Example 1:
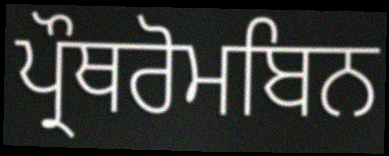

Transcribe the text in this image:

ਪ੍ਰੌਥਰੋਮਬਿਨ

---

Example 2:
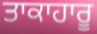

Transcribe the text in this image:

ਤਾਕਾਹਾਰੂ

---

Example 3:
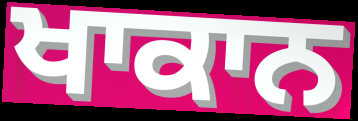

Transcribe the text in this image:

ਖਾਕਾਨ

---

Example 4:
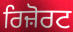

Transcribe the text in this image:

ਰਿਜ਼ੋਰਟ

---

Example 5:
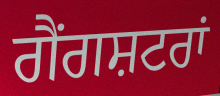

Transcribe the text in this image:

ਗੈਂਗਸ਼ਟਰਾਂ